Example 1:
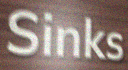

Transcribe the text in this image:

Sinks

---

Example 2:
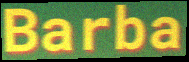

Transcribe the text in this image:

Barba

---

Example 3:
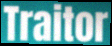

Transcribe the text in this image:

Traitor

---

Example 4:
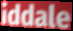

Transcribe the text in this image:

iddale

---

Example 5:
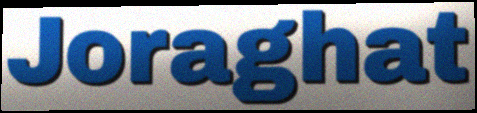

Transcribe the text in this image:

Joraghat